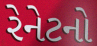
રેનેટનો